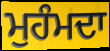
ਮੁਹੰਮਦਾ